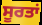
ਸੂਰਤਾਂ